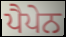
ਪੈਪੇਨ